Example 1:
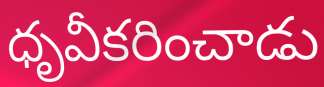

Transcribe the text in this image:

ధృవీకరించాడు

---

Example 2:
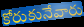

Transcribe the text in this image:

కోరుకునేవారు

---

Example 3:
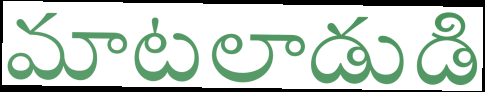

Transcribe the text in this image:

మాటలాడుడి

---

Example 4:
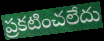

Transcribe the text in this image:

ప్రకటించలేదు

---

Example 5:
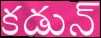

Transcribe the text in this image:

కడున్